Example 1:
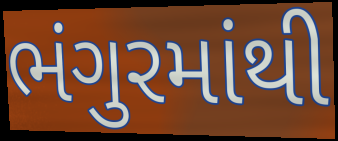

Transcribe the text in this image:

ભંગુરમાંથી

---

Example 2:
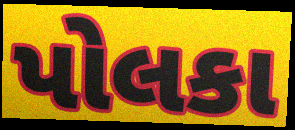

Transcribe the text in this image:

પોલકા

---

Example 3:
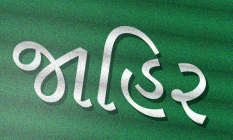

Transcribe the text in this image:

જાહિર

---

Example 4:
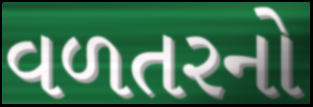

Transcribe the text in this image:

વળતરનો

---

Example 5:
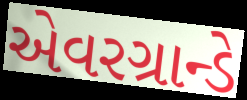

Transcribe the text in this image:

એવરગ્રાન્ડે